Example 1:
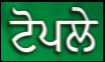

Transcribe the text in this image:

ਟੋਪਲੇ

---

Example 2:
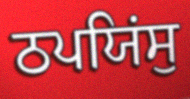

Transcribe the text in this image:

ਠਪਯਿਂਸੁ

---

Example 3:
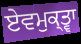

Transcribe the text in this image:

ਏਵਮੁਕ੍ਤ੍ਵਾ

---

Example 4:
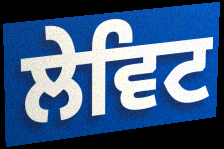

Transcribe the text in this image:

ਲੇਵਿਟ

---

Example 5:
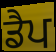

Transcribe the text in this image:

ਡੈਪ